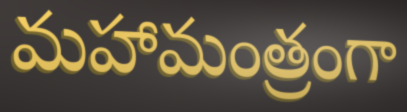
మహామంత్రంగా